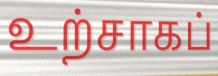
உற்சாகப்